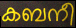
കബനീ